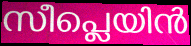
സീപ്ലെയിൻ